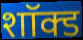
शॉक्ड